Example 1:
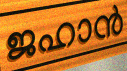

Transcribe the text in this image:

ജഹാൻ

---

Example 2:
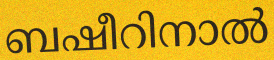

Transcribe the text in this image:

ബഷീറിനാൽ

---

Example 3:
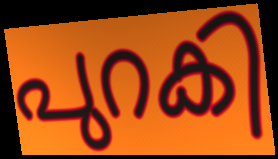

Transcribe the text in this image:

പുറകി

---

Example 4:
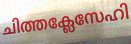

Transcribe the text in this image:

ചിത്തക്ലേസേഹി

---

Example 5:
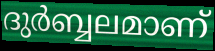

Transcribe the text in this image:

ദുർബ്ബലമാണ്